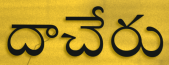
దాచేరు